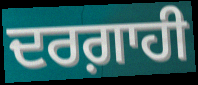
ਦਰਗ਼ਾਹੀ